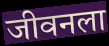
जीवनला